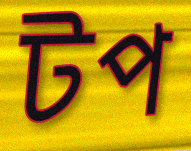
টপ